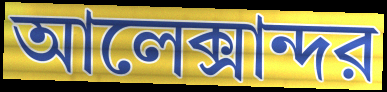
আলেক্সান্দর